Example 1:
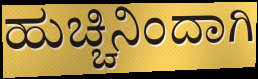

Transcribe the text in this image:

ಹುಚ್ಚಿನಿಂದಾಗಿ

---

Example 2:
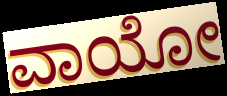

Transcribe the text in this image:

ವಾಯೋ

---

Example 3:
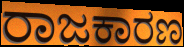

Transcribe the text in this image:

ರಾಜಕಾರಣ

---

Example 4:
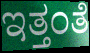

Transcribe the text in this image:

ಇತ್ತಂತೆ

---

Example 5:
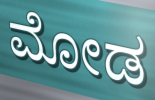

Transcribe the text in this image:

ಮೋಡ